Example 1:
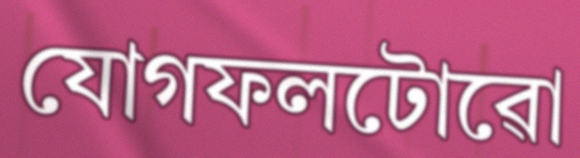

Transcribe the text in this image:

যোগফলটোৱো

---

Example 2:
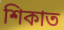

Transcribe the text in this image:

শিকাত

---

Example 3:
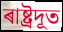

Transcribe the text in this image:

ৰাষ্ট্ৰদূত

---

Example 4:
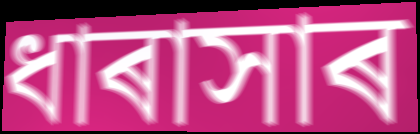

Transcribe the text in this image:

ধাৰাসাৰ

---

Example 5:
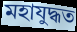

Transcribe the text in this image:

মহাযুদ্ধত